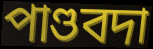
পাণ্ডবদা